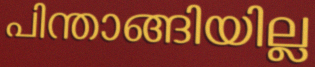
പിന്താങ്ങിയില്ല